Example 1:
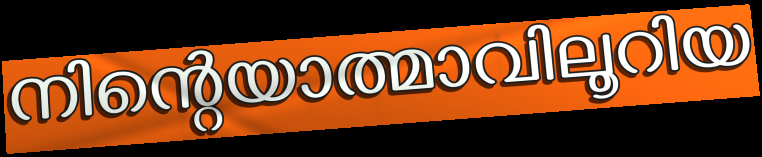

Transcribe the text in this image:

നിന്റെയാത്മാവിലൂറിയ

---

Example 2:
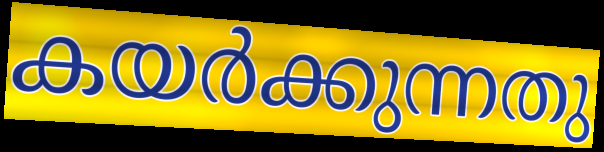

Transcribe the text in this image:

കയർക്കുന്നതു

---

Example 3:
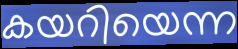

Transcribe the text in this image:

കയറിയെന്ന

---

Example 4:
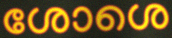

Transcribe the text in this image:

ശോശെ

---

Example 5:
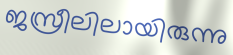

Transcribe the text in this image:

ജസ്രീലിലായിരുന്നു